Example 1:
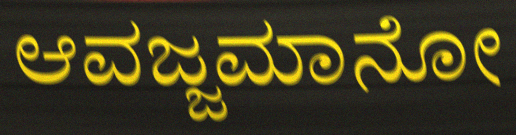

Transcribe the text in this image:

ಆವಜ್ಜಮಾನೋ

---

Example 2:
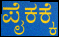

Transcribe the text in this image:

ಪೈಕಕ್ಕೆ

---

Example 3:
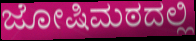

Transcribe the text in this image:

ಜೋಷಿಮಠದಲ್ಲಿ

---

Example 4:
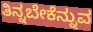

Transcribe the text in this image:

ತಿನ್ನಬೇಕೆನ್ನುವ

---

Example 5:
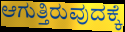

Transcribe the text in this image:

ಆಗುತ್ತಿರುವುದಕ್ಕೆ